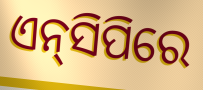
ଏନ୍‌ସିପିରେ